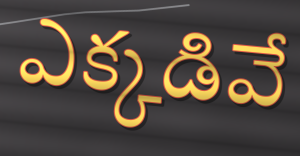
ఎక్కడివే